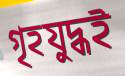
গৃহযুদ্ধই